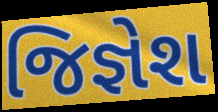
જિજ્ઞેશ